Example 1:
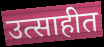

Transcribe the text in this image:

उत्साहीत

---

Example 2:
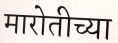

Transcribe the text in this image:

मारोतीच्या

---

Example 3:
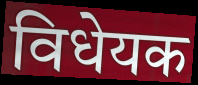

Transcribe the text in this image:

विधेयक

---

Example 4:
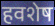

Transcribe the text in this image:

हवशेष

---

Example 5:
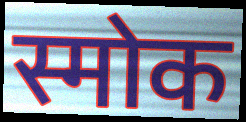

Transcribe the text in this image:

स्मोक